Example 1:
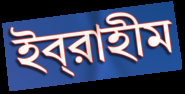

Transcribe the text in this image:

ইব্‌রাহীম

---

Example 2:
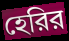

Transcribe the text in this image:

হেরির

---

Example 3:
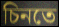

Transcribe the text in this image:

চিনতে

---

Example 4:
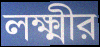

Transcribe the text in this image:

লক্ষ্মীর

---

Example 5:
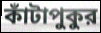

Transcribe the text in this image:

কাঁটাপুকুর